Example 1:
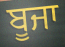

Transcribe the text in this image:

ਬੂਜਾ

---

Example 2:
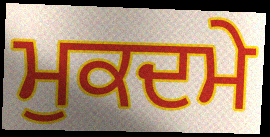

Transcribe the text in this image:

ਮੁਕਦਮੇ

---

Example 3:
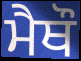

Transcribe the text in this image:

ਮੈਥੌ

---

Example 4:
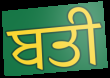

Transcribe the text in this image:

ਬਤੀ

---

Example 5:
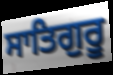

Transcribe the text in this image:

ਸਾਤਿਗੁਰੂ